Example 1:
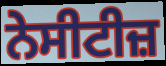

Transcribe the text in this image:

ਨੇਸੀਟੀਜ਼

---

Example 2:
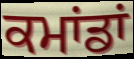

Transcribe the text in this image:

ਕਮਾਂਡਾਂ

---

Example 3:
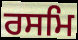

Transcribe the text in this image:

ਰਸਮਿ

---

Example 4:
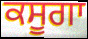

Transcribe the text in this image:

ਕਸੂਗਾ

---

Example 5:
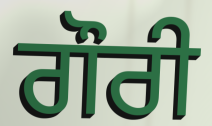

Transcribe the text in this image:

ਗੌਰੀ